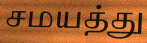
சமயத்து